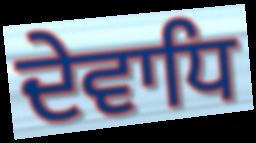
ਦੇਵਾਧਿ